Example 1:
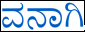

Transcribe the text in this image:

ವನಾಗಿ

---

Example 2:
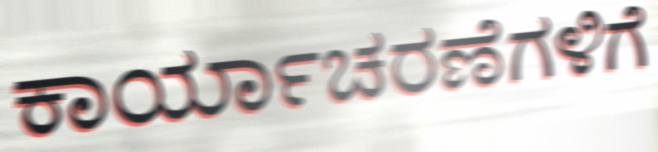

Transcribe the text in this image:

ಕಾರ್ಯಾಚರಣೆಗಳಿಗೆ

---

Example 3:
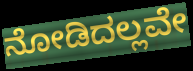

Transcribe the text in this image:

ನೋಡಿದಲ್ಲವೇ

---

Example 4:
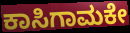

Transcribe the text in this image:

ಕಾಸಿಗಾಮಕೇ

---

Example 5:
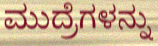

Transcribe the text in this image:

ಮುದ್ರೆಗಳನ್ನು